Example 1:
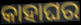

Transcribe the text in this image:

କାହାଘର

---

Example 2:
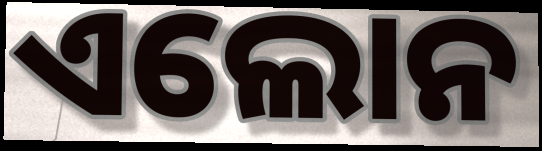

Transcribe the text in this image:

ଏଲୋନ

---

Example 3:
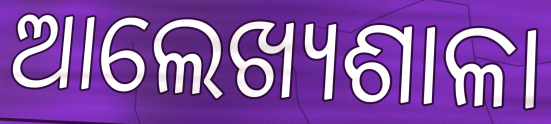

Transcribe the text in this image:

ଆଲେଖ୍ୟଶାଳା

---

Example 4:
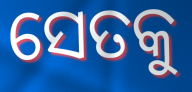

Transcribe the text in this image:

ସେତକୁ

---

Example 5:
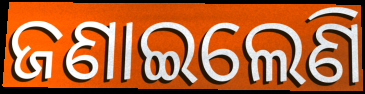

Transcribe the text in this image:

ଜଣାଇଲେଣି